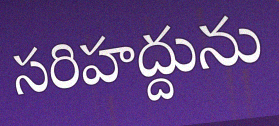
సరిహద్దును